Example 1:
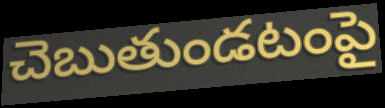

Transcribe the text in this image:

చెబుతుండటంపై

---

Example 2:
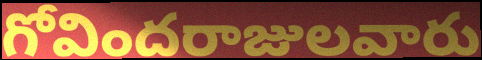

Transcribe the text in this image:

గోవిందరాజులవారు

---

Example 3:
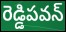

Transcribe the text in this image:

రెడ్డిపవన్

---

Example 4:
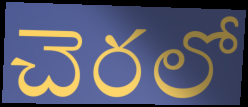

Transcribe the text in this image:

చెరలో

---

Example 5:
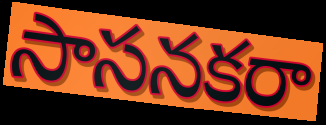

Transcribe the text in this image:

సాసనకరా